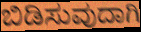
ಬಿಡಿಸುವುದಾಗಿ